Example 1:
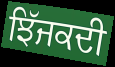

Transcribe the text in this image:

ਝਿੱਜਕਦੀ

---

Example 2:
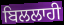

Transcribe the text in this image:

ਬਿਲਲਾਹੀ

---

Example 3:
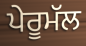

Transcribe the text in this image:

ਪੇਰੂਮੱਲ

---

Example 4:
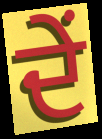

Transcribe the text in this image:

ਦੇਂ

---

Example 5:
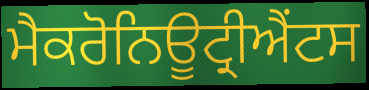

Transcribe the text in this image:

ਮੈਕਰੋਨਿਊਟ੍ਰੀਐਂਟਸ